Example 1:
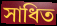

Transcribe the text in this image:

সাধিত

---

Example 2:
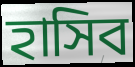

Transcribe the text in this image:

হাসিব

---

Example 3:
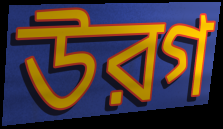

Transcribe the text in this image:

উরগ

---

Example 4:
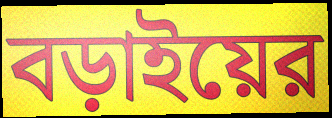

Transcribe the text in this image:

বড়াইয়ের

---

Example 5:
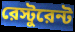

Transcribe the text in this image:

রেস্টুরেন্ট